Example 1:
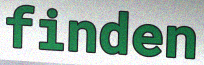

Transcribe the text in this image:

finden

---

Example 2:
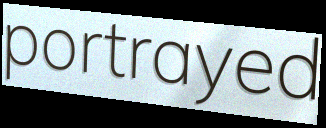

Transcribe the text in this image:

portrayed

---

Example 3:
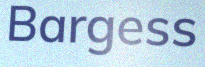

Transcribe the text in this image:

Bargess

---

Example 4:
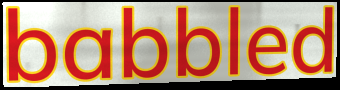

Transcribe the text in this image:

babbled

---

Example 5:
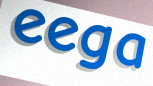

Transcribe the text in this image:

eega